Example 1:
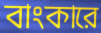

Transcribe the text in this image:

বাংকারে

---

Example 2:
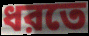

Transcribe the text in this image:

ধরতে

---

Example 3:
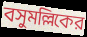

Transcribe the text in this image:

বসুমল্লিকের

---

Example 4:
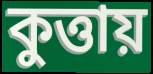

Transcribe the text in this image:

কুত্তায়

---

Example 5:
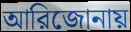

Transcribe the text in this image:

আরিজোনায়